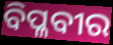
ବିପ୍ଳବୀର